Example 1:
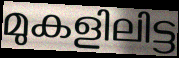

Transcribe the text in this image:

മുകളിലിട്ട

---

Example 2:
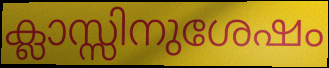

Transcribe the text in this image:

ക്ലാസ്സിനുശേഷം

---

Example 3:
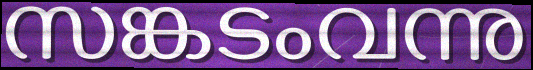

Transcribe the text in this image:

സങ്കടംവന്നു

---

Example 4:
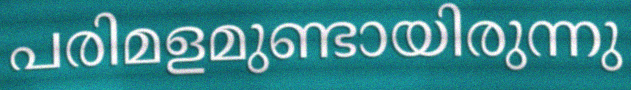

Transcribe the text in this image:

പരിമളമുണ്ടായിരുന്നു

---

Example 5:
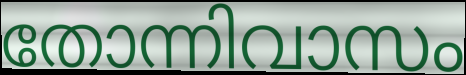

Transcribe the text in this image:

തോന്നിവാസം